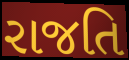
રાજતિ